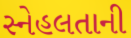
સ્નેહલતાની